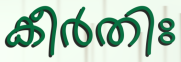
കീർതിഃ